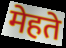
मेहते